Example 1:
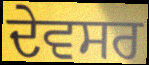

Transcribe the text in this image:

ਦੇਵਸਰ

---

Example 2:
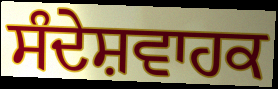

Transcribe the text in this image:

ਸੰਦੇਸ਼ਵਾਹਕ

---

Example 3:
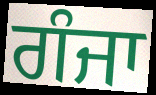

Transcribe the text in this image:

ਗੰਜਾ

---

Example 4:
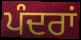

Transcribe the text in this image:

ਪੰਦਰਾਂ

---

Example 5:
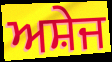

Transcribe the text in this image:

ਅਸ਼ੇਜ